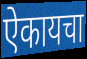
ऐकायचा